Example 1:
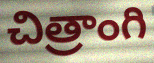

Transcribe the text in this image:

చిత్రాంగి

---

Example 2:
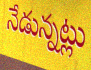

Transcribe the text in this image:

నేడున్నట్లు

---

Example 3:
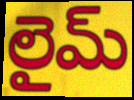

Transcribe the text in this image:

లైమ్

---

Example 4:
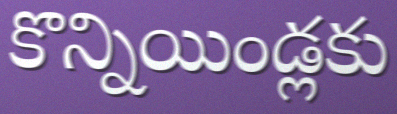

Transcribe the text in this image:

కొన్నియిండ్లకు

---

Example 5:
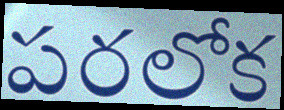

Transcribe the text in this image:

పరలోక